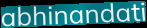
abhinandati